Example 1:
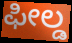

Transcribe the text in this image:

ಫೀಲ್ಡ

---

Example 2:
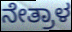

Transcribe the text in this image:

ನೇತ್ರಾಳ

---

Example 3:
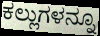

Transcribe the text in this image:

ಕಲ್ಲುಗಳನ್ನೂ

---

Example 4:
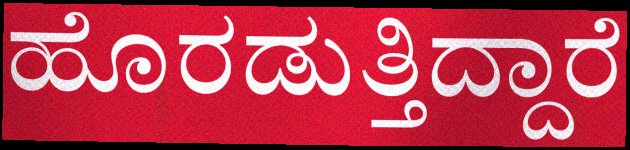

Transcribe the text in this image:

ಹೊರಡುತ್ತಿದ್ದಾರೆ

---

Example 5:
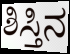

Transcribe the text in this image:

ಶಿಸ್ತಿನ